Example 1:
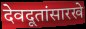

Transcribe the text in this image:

देवदूतांसारखे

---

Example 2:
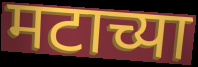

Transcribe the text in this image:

मटाच्या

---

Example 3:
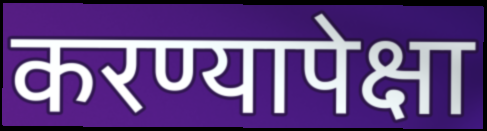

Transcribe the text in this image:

करण्यापेक्षा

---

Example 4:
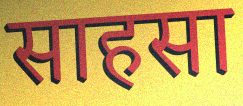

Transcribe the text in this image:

साहसा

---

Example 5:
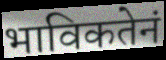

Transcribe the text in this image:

भाविकतेनं